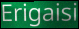
Erigaisi